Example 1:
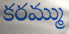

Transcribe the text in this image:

కరమ్ము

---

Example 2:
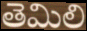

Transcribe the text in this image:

తెమిలి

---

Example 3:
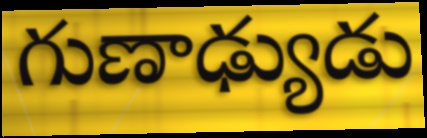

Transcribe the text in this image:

గుణాఢ్యుడు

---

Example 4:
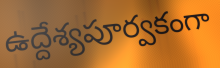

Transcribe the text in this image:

ఉద్దేశ్యపూర్వకంగా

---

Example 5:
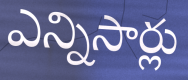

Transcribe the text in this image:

ఎన్నిసార్లు